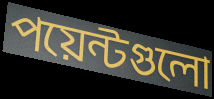
পয়েন্টগুলো